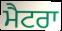
ਮੈਟਰਾ